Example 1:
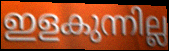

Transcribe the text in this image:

ഇളകുന്നില്ല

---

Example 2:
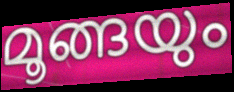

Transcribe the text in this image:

മൂങ്ങയും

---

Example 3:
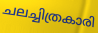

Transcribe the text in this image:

ചലച്ചിത്രകാരി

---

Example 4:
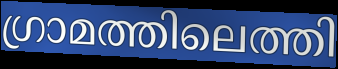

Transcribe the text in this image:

ഗ്രാമത്തിലെത്തി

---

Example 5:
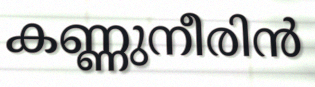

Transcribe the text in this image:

കണ്ണുനീരിൻ